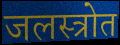
जलस्त्रोत